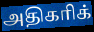
அதிகரிக்